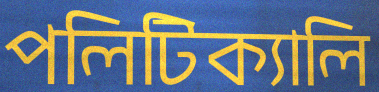
পলিটিক্যালি